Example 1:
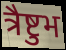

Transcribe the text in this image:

त्रैष्टुभ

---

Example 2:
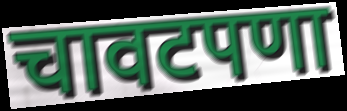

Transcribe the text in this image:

चावटपणा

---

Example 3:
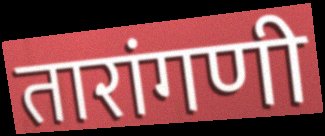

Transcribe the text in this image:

तारांगणी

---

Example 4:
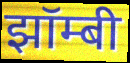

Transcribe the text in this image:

झॉम्बी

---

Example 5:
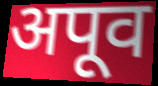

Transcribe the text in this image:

अपूव